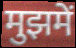
मुझमें